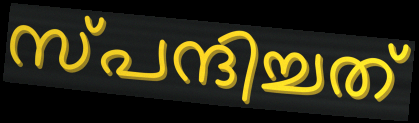
സ്പന്ദിച്ചത്